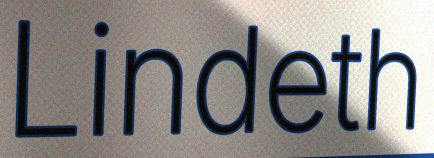
Lindeth